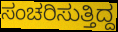
ಸಂಚರಿಸುತ್ತಿದ್ದ